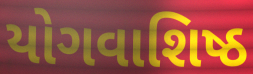
યોગવાશિષ્ઠ